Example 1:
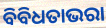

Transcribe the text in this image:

ବିବିଧତାଭରା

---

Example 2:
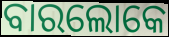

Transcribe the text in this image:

ବାରଲୋକେ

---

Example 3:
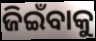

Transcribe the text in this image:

ଜିଇଁବାକୁ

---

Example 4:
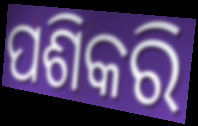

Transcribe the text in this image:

ପଶିକରି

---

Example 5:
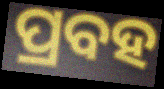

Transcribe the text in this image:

ପ୍ରବହ